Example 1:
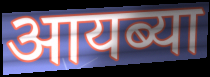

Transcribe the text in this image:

आयब्या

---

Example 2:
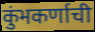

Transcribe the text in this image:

कुंभकर्णाची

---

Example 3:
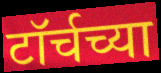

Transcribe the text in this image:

टॉर्चच्या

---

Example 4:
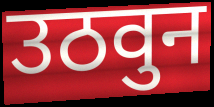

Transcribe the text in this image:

उठवुन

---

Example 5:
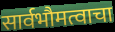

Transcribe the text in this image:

सार्वभौमत्वाचा